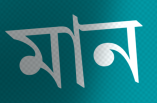
মান